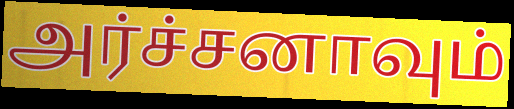
அர்ச்சனாவும்